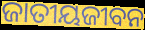
ଜାତୀୟଜୀବନ